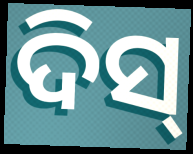
ଦିସ୍